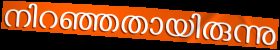
നിറഞ്ഞതായിരുന്നു